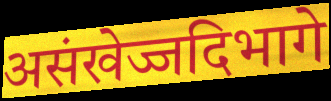
असंखेज्जदिभागे